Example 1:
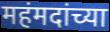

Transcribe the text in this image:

महंमदांच्या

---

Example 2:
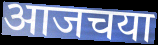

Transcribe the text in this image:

आजचया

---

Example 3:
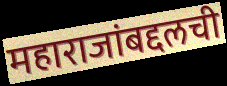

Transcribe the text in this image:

महाराजांबद्दलची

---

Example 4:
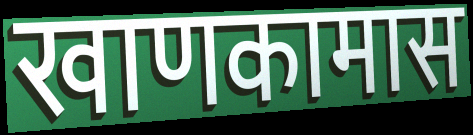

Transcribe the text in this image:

खाणकामास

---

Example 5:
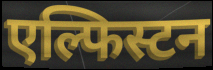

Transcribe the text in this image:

एल्फिस्टन